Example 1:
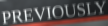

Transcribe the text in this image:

PREVIOUSLY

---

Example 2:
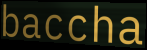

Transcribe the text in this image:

baccha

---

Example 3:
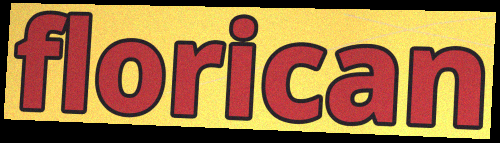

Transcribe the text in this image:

florican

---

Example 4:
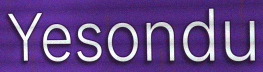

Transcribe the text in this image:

Yesondu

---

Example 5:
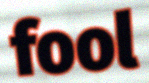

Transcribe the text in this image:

fool